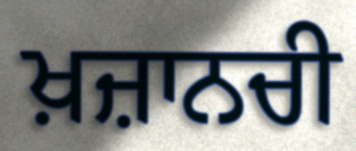
ਖ਼ਜ਼ਾਨਚੀ